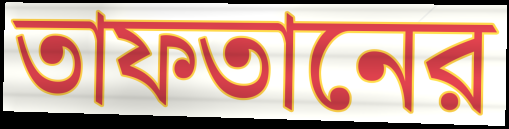
তাফতানের